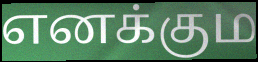
எனக்கும